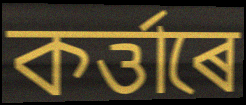
কৰ্ত্তাৰে